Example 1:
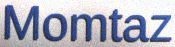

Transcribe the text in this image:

Momtaz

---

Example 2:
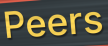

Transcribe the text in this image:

Peers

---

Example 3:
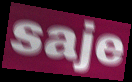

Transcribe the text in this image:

saje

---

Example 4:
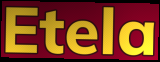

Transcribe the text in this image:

Etela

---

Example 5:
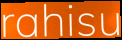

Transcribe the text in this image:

rahisu